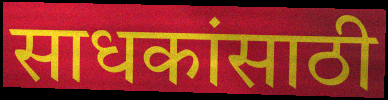
साधकांसाठी